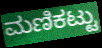
ಮಣಿಕಟ್ಟು